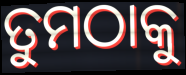
ତୁମଠାକୁ